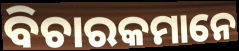
ବିଚାରକମାନେ